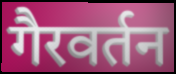
गैरवर्तन